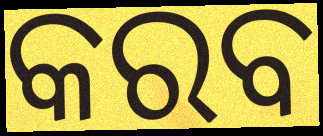
କରବ